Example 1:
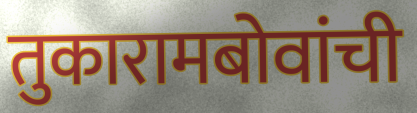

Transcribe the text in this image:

तुकारामबोवांची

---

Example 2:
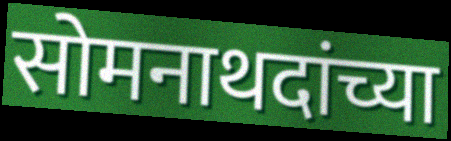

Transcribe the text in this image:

सोमनाथदांच्या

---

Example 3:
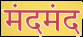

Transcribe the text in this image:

मंदमंद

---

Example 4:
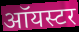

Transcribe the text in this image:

ऑयस्टर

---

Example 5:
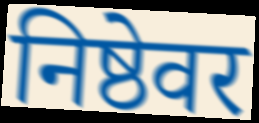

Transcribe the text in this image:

निष्ठेवर